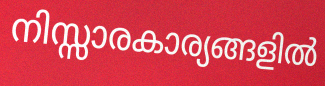
നിസ്സാരകാര്യങ്ങളിൽ